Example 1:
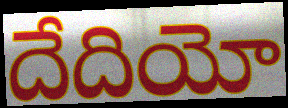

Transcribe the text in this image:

దేదియో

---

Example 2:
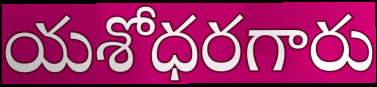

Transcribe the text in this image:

యశోధరగారు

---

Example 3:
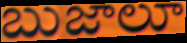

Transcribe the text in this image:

బుజాలూ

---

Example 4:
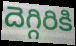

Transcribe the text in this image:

దెగ్గిరికి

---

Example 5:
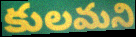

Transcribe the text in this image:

కులమని